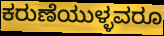
ಕರುಣೆಯುಳ್ಳವರೂ